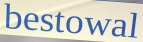
bestowal